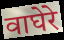
वाघेरे